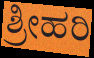
ಶ್ರೀಹರಿ